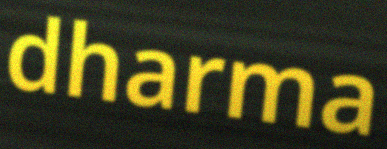
dharma